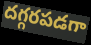
దగ్గరపడగా